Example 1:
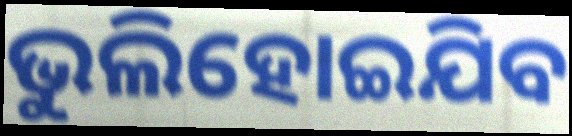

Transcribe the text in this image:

ଭୁଲିହୋଇଯିବ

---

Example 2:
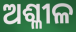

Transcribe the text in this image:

ଅଶ୍ଳୀଳ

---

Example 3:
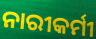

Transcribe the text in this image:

ନାରୀକର୍ମୀ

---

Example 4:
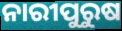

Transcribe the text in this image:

ନାରୀପୁରୁଷ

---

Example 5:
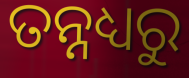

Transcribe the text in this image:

ତନ୍ନଧ୍ୟରୁ